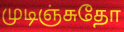
முடிஞ்சுதோ